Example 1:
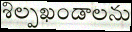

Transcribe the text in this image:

శిల్పఖండాలను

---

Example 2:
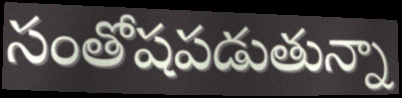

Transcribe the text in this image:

సంతోషపడుతున్నా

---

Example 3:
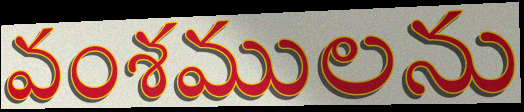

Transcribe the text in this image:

వంశములను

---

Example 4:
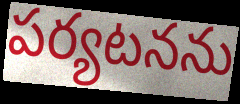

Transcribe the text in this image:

పర్యటనను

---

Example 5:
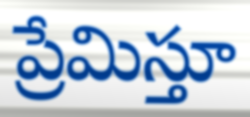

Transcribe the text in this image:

ప్రేమిస్తూ